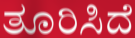
ತೂರಿಸಿದೆ